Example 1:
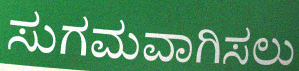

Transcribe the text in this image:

ಸುಗಮವಾಗಿಸಲು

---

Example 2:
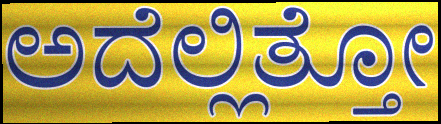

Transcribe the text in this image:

ಅದೆಲ್ಲಿತ್ತೋ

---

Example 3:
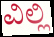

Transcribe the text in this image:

ವಿಲ್ಲಿ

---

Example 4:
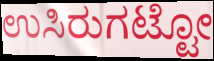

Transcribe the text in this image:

ಉಸಿರುಗಟ್ಟೋ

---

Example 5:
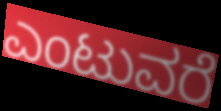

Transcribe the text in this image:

ಎಂಟುವರೆ